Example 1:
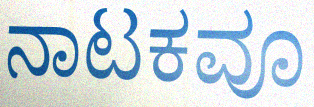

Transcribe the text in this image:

ನಾಟಕವೂ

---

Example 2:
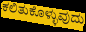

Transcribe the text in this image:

ಕಲಿತುಕೊಳ್ಳುವುದು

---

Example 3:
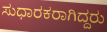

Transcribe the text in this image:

ಸುಧಾರಕರಾಗಿದ್ದರು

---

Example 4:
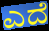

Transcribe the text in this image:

ಎದೆ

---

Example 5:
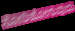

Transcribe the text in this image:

ಸೋರಿಹೋಗುವುದು